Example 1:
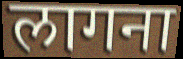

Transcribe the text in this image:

लागना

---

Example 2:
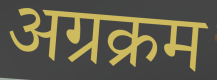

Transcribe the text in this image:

अग्रक्रम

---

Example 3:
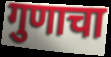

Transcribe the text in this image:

गुणाचा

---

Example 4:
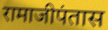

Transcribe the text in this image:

रामाजीपंतास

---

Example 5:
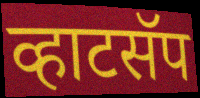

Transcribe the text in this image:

व्हाटसॅप